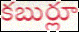
కబుర్లూ